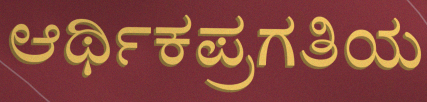
ಆರ್ಥಿಕಪ್ರಗತಿಯ